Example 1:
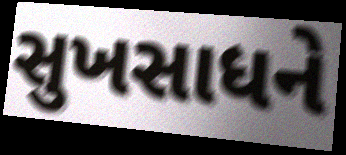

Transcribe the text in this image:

સુખસાધને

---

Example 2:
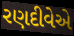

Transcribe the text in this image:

રણદીવેએ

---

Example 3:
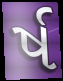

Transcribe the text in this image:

ર્ષ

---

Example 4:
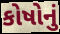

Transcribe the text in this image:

કોષોનું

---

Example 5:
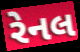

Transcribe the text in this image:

રેનલ